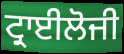
ਟ੍ਰਾਈਲੋਜੀ